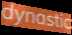
dynastic